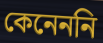
কেনেননি